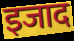
इजाद